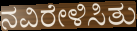
ನವಿರೇಳಿಸಿತು